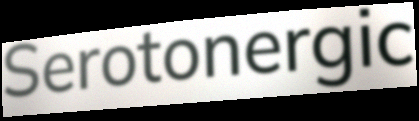
Serotonergic